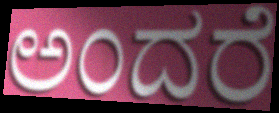
ಅಂದರೆ